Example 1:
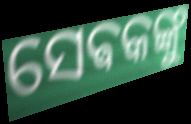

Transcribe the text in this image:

ସେଵକଙ୍କୁ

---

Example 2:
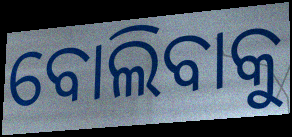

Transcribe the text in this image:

ବୋଲିବାକୁ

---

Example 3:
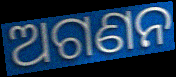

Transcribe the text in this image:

ଅଗଣନ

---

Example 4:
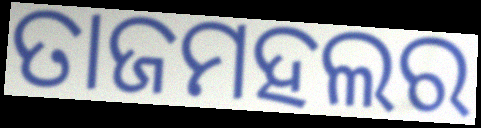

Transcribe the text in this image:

ତାଜମହଲର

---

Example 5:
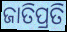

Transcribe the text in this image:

ଜାତିପ୍ରତି